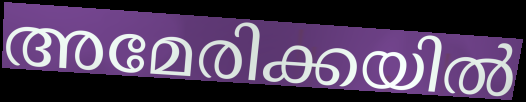
അമേരിക്കയിൽ